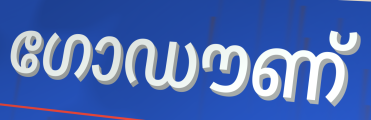
ഗോഡൗണ്